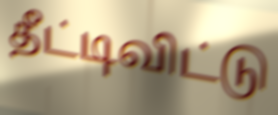
தீட்டிவிட்டு